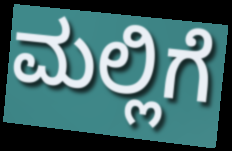
ಮಲ್ಲಿಗೆ